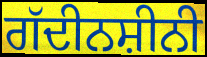
ਗੱਦੀਨਸ਼ੀਨੀ